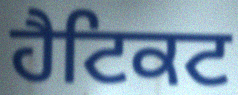
ਹੈਟਿਕਟ